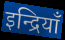
इन्द्रियाँ